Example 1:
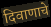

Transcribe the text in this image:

दिवाणाचे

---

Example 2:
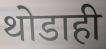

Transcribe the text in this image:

थोडाही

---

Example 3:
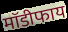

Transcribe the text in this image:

मॉडीफाय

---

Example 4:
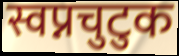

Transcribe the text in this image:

स्वप्नचुटुक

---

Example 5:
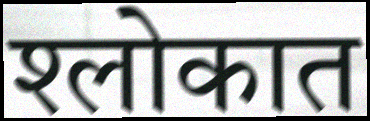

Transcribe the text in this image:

श्लोकात